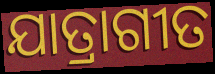
ଯାତ୍ରାଗୀତ